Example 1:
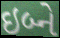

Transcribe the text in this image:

ઇબ્ને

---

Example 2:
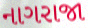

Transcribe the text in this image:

નાગરાજા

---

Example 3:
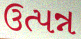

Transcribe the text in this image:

ઉત્પન્ન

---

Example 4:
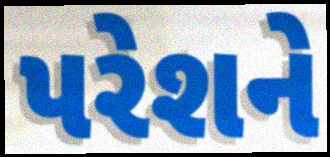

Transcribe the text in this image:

પરેશને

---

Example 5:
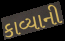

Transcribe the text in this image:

કાવ્યાની